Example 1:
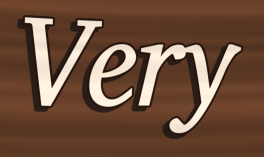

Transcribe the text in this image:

Very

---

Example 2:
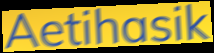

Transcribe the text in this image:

Aetihasik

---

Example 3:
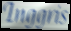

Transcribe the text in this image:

Inggris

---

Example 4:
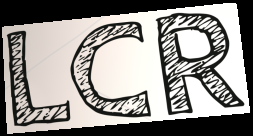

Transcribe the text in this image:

LCR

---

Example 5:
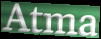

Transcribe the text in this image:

Atma